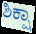
ಶಿಕ್ಷಾ